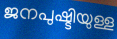
ജനപുഷ്ടിയുള്ള